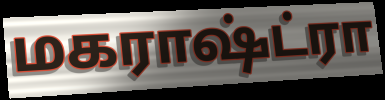
மகராஷ்ட்ரா